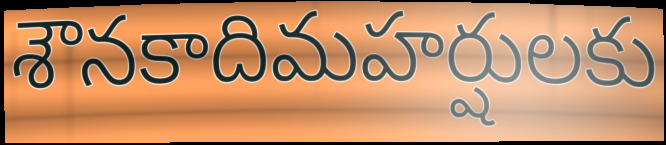
శౌనకాదిమహర్షులకు